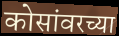
कोसांवरच्या